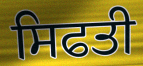
ਸਿਫਤੀ